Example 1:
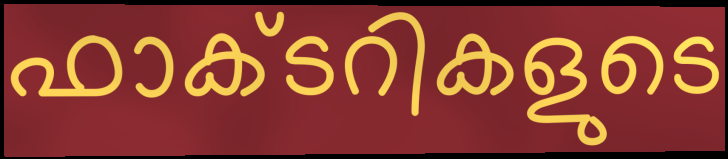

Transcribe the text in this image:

ഫാക്ടറികളുടെ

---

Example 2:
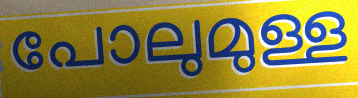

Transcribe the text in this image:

പോലുമുള്ള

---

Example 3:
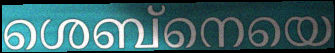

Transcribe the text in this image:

ശെബ്നെയെ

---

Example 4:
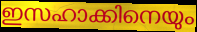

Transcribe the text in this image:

ഇസഹാക്കിനെയും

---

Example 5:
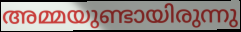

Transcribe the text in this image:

അമ്മയുണ്ടായിരുന്നു